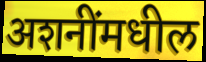
अशनींमधील